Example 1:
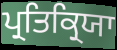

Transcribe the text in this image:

ਪ੍ਰਤਿਕ੍ਰਿਯਾ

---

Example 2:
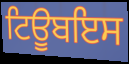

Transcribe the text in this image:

ਟਿਊਬਇਸ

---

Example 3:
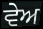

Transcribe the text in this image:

ਵੇਅ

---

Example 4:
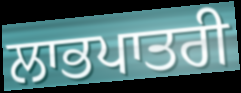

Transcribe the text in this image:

ਲਾਭਪਾਤਰੀ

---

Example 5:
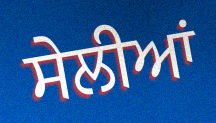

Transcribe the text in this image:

ਸੇਲੀਆਂ